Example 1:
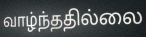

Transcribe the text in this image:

வாழ்ந்ததில்லை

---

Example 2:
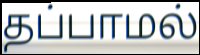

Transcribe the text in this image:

தப்பாமல்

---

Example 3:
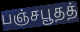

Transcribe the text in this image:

பஞ்சபூதத்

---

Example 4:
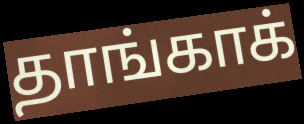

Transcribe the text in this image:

தாங்காக்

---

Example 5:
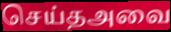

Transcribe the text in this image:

செய்தஅவை